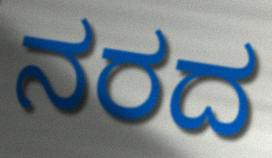
ನರದ